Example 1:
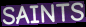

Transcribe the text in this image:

SAINTS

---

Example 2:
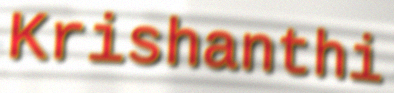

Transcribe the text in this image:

Krishanthi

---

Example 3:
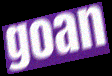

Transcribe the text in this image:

goan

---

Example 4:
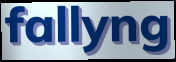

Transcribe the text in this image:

fallyng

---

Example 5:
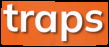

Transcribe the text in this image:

traps